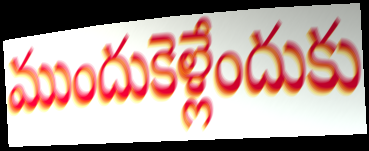
ముందుకెళ్లేందుకు